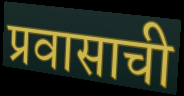
प्रवासाची